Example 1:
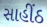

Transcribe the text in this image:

સાહીંઠ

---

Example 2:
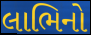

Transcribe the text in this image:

લાભિનો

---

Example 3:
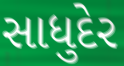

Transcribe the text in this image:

સાધુદેર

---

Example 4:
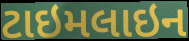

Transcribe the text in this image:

ટાઇમલાઇન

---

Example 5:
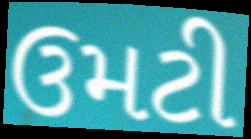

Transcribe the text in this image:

ઉમટી